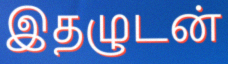
இதழுடன்